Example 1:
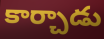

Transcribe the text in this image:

కార్చాడు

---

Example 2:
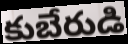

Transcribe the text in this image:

కుబేరుడి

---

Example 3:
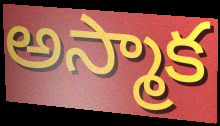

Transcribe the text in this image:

అస్మాక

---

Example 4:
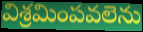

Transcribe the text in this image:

విశ్రమింపవలెను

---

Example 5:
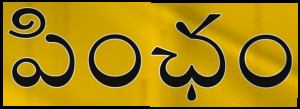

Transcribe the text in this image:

పింఛం